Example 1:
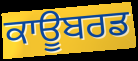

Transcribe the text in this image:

ਕਾਊਬਰਡ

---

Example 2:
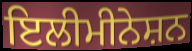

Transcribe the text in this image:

ਇਲੀਮੀਨੇਸ਼ਨ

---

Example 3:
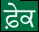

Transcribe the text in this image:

ਫ਼ੇਕ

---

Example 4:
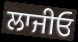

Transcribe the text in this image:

ਲਾਜੀਓ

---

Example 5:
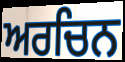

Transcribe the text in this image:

ਅਰਚਿਨ